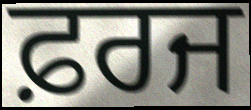
ਫ਼ਰਜ